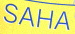
SAHA